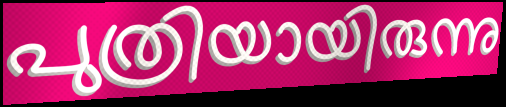
പുത്രിയായിരുന്നു